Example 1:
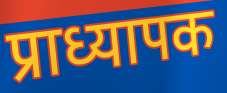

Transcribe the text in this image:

प्राध्यापक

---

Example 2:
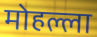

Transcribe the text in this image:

मोहल्‍ला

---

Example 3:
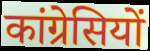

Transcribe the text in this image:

कांग्रेसियों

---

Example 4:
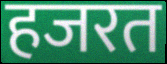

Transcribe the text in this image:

हजरत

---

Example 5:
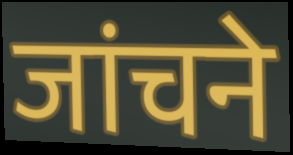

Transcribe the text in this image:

जांचने